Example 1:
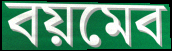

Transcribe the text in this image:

বয়মেব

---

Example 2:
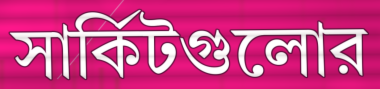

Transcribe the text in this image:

সার্কিটগুলোর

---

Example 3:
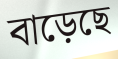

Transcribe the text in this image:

বাড়েছে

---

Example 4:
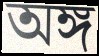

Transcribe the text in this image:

অঙ্গ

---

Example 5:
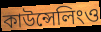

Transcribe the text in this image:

কাউন্সেলিংও